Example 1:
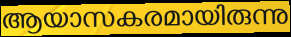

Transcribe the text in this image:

ആയാസകരമായിരുന്നു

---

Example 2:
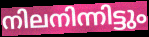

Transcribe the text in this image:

നിലനിന്നിട്ടും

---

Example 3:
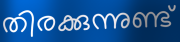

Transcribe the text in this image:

തിരക്കുന്നുണ്ട്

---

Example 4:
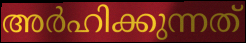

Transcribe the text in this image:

അർഹിക്കുന്നത്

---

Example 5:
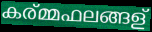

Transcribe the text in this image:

കര്മ്മഫലങ്ങള്